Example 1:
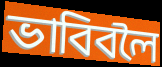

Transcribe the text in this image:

ভাবিবলৈ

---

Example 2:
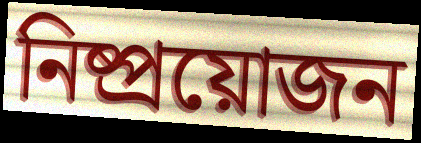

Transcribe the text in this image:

নিষ্প্ৰয়োজন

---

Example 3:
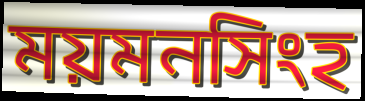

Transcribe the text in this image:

ময়মনসিংহ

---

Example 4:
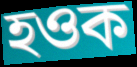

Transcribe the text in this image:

হওক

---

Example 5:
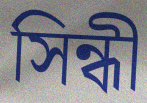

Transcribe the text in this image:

সিন্ধী